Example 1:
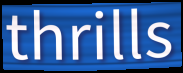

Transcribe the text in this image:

thrills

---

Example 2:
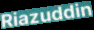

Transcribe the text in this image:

Riazuddin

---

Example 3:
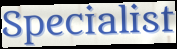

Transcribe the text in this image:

Specialist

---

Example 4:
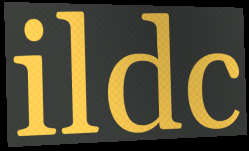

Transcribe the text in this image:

ildc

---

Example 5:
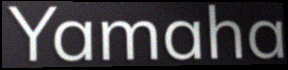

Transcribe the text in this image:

Yamaha